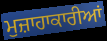
ਮੁਜ਼ਾਹਾਕਾਰੀਆਂ